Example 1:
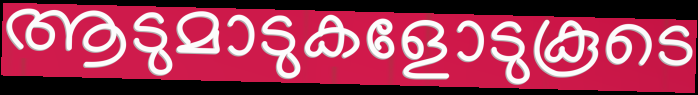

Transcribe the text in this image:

ആടുമാടുകളോടുകൂടെ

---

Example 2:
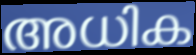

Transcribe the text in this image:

അധിക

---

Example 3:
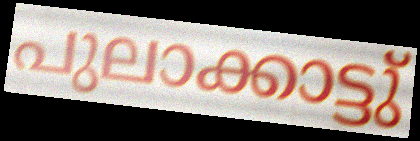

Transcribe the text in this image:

പുലാക്കാട്ടു്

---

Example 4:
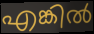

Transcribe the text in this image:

എങ്കിൽ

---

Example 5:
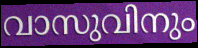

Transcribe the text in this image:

വാസുവിനും